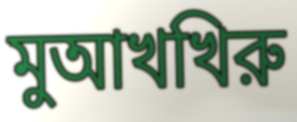
মুআখখিরু